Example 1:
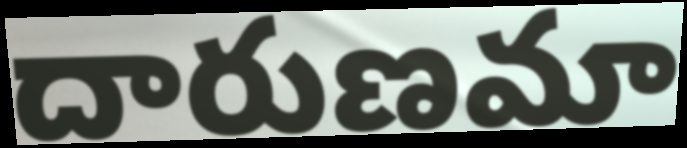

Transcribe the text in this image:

దారుణమా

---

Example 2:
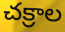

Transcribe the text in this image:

చక్రాల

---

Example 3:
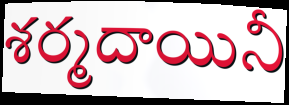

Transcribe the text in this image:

శర్మదాయినీ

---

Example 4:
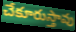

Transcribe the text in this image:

చేకూరుస్తావు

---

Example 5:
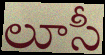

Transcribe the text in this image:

లూసీ